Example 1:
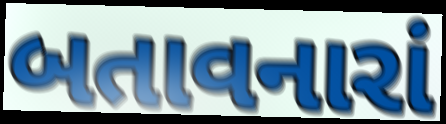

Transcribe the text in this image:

બતાવનારાં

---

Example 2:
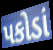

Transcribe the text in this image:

પકોડાં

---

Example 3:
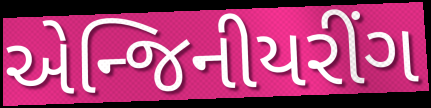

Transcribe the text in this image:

એન્જિનીયરીંગ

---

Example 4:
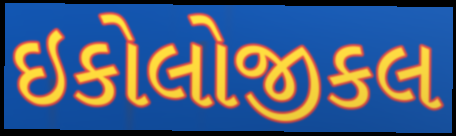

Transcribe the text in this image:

ઇકોલોજીકલ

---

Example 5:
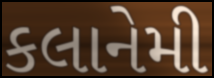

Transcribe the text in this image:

કલાનેમી